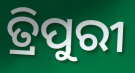
ତ୍ରିପୁରୀ